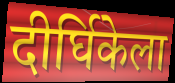
दीर्घिकेला